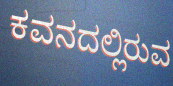
ಕವನದಲ್ಲಿರುವ